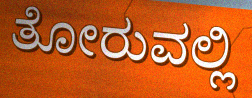
ತೋರುವಲ್ಲಿ